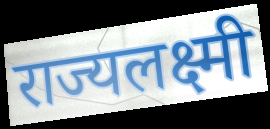
राज्यलक्ष्मी